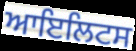
ਆਇਲਿਟਸ